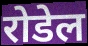
रोडेल